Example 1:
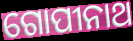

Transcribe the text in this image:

ଗୋପୀନାଥ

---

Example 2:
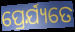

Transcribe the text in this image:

ପ୍ରେର୍ଯ୍ୟତେ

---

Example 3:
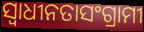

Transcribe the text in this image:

ସ୍ଵାଧୀନତାସଂଗ୍ରାମୀ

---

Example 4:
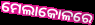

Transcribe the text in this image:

ମେଲାକୋଳରେ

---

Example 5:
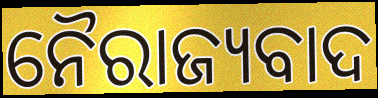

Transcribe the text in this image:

ନୈରାଜ୍ୟବାଦ